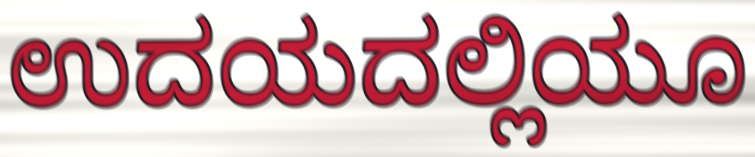
ಉದಯದಲ್ಲಿಯೂ